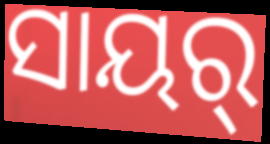
ସାୟର୍